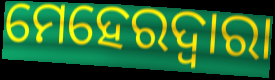
ମେହେରଦ୍ୱାରା